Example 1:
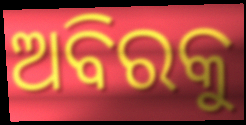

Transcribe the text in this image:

ଅବିରକୁ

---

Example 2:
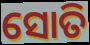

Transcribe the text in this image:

ସୋତି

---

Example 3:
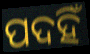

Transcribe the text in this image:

ପଦହିଁ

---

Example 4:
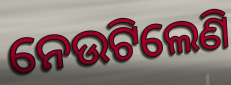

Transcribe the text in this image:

ନେଉଟିଲେଣି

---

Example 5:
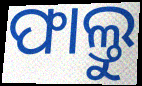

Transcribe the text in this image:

ଫାଲ୍ତୁ